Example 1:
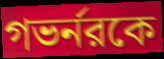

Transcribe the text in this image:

গভর্নরকে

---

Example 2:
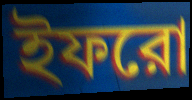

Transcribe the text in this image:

ইফরো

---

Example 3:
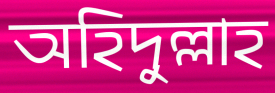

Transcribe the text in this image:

অহিদুল্লাহ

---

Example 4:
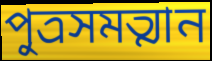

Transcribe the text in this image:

পুত্রসমত্মান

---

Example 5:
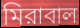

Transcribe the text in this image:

মিরাবাল